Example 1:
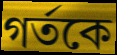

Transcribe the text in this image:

গর্তকে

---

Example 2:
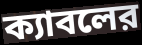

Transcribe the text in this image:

ক্যাবলের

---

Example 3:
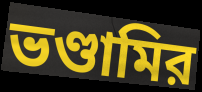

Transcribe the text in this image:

ভণ্ডামির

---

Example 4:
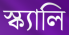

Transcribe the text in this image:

স্ক্যালি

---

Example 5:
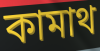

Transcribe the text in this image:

কামাথ